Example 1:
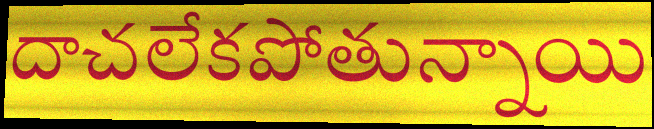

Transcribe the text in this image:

దాచలేకపోతున్నాయి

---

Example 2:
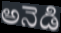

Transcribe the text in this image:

అనెడి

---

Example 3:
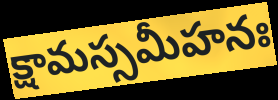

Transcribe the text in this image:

క్షామస్సమీహనః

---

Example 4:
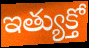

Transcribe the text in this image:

ఇత్యుక్తో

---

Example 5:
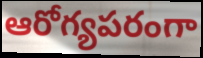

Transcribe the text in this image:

ఆరోగ్యపరంగా